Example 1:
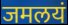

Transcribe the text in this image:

जमलयं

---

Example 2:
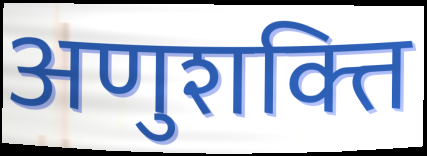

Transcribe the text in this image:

अणुशक्ति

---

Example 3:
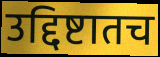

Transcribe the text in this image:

उद्दिष्टातच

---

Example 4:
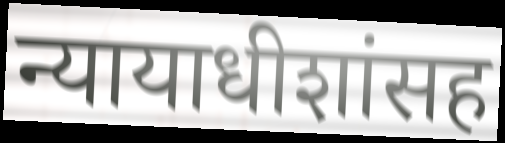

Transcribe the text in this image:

न्यायाधीशांसह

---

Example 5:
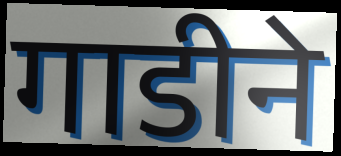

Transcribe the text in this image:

गाडीने